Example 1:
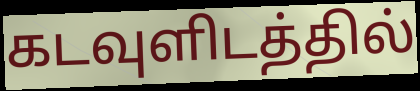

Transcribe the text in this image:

கடவுளிடத்தில்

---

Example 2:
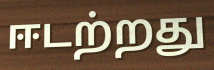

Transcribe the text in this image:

ஈடற்றது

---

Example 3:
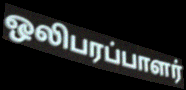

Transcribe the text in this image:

ஒலிபரப்பாளர்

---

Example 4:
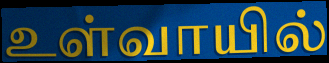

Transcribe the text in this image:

உள்வாயில்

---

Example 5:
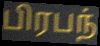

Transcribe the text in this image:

பிரபந்